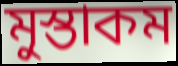
মুস্তাকম